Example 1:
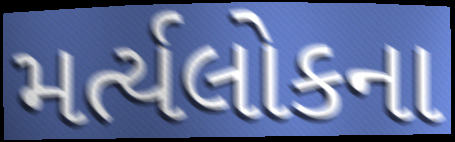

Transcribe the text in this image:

મર્ત્યલોકના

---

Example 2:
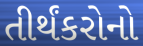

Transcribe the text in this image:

તીર્થંકરોનો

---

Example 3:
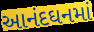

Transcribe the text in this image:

આનંદઘનમાં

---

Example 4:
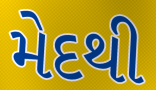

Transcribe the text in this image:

મેદથી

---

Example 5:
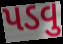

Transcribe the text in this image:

પડવુ